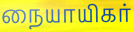
நையாயிகர்